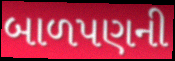
બાળપણની